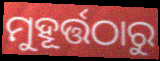
ମୁହୂର୍ତ୍ତଠାରୁ